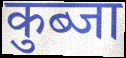
कुब्जा